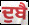
ਦੁਬੈ